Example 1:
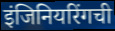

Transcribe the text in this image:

इंजिनियरिंगची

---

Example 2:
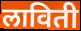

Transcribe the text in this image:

लाविती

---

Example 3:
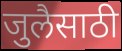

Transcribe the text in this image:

जुलैसाठी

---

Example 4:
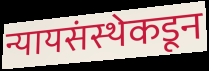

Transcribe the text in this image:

न्यायसंस्थेकडून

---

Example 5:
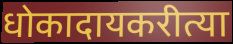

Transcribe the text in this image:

धोकादायकरीत्या